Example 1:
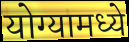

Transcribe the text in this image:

योग्यामध्ये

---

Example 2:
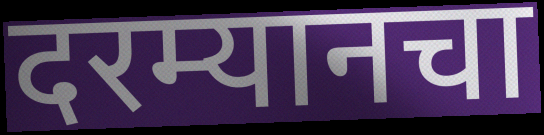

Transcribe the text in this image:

दरम्यानचा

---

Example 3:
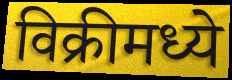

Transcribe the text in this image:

विक्रीमध्ये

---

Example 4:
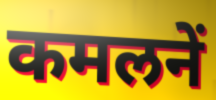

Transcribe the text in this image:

कमलनें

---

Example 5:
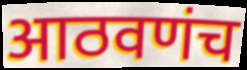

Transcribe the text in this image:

आठवणंच